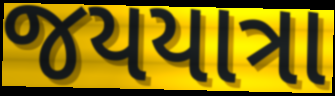
જયયાત્રા